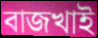
বাজখাই